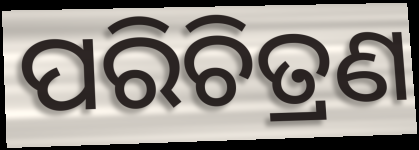
ପରିଚିତ୍ରଣ